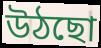
উঠছো